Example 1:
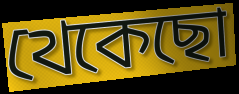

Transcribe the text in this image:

থেকেছো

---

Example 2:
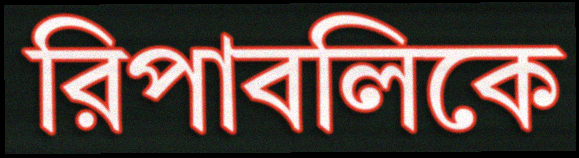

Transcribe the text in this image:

রিপাবলিকে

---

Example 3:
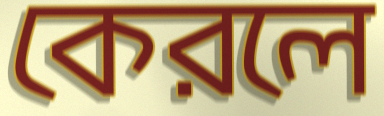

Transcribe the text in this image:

কেরলে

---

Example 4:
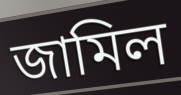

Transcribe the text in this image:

জামিল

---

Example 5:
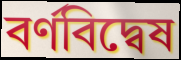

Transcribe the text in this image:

বর্ণবিদ্বেষ